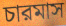
চারমাস